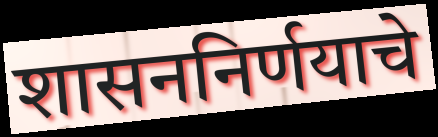
शासननिर्णयाचे